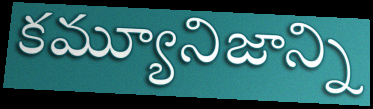
కమ్యూనిజాన్ని